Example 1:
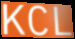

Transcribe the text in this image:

KCL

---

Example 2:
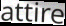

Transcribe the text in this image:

attire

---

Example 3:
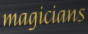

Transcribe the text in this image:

magicians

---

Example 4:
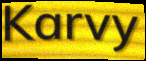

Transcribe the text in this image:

Karvy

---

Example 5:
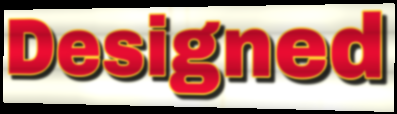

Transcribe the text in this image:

Designed